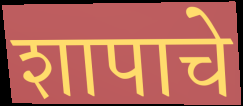
शापाचे